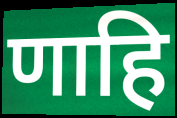
णाहि